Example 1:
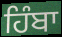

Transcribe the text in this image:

ਹਿੰਬਾ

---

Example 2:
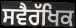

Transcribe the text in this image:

ਸਵੈਰੱਖਿਕ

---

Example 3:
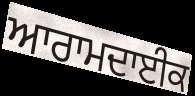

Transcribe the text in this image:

ਆਰਾਮਦਾਈਕ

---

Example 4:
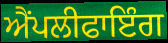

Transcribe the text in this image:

ਐਂਪਲੀਫਾਇੰਗ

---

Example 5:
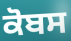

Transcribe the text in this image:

ਕੋਬਸ